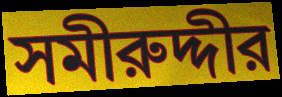
সমীরুদ্দীর